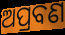
ଅପ୍ରବଣ